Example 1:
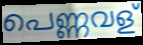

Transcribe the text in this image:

പെണ്ണവള്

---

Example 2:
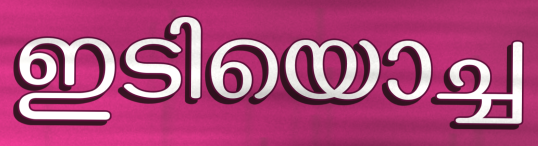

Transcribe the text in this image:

ഇടിയൊച്ച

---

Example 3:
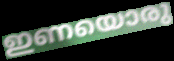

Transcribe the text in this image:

ഇണയൊരു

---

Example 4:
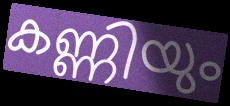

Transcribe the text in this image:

കണ്ണിയും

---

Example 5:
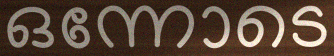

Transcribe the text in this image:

ഒന്നോടെ